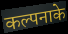
कल्पनाके